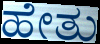
ಹೇತು